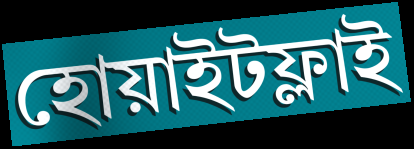
হোয়াইটফ্লাই